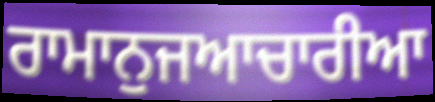
ਰਾਮਾਨੁਜਆਚਾਰੀਆ